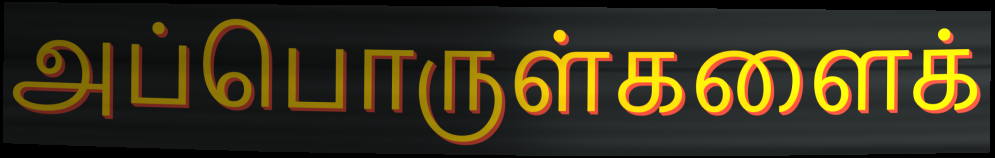
அப்பொருள்களைக்